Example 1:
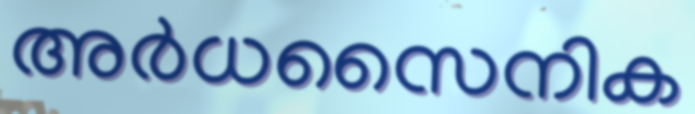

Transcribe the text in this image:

അർധസൈനിക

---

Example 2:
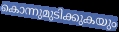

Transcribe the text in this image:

കൊന്നുമുടിക്കുകയും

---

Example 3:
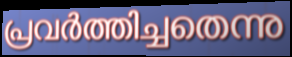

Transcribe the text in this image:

പ്രവർത്തിച്ചതെന്നു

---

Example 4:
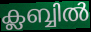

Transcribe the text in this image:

ക്ലബ്ബിൽ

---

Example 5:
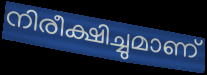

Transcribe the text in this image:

നിരീക്ഷിച്ചുമാണ്